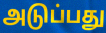
அடுப்பது